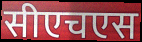
सीएचएस